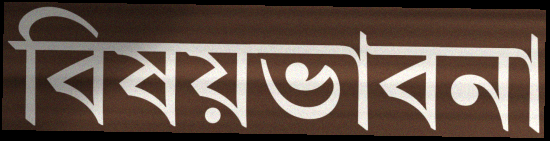
বিষয়ভাবনা